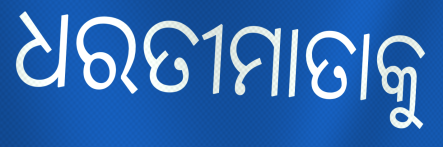
ଧରତୀମାତାକୁ